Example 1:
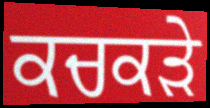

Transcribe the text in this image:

ਕਚਕੜੇ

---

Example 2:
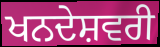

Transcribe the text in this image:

ਖਨਦੇਸ਼ਵਰੀ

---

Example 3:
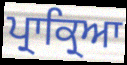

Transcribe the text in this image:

ਪ੍ਰਾਕ੍ਰਿਆ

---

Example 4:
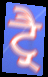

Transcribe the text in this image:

ਟ੍ਰੈ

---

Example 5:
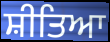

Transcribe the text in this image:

ਸ਼ੀਤਿਆ